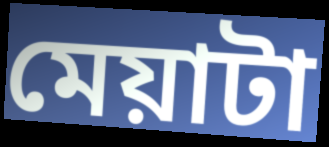
মেয়াটা